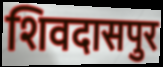
शिवदासपुर